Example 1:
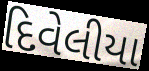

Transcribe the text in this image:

દિવેલીયા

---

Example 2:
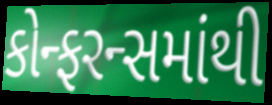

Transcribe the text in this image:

કોન્ફરન્સમાંથી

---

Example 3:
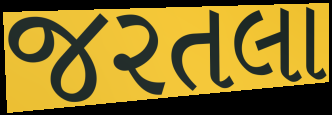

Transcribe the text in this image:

જરતલા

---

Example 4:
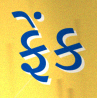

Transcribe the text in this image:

ફેંક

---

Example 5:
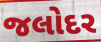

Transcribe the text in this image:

જલોદર